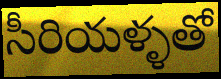
సీరియళ్ళతో